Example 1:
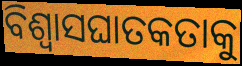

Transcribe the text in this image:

ବିଶ୍ୱାସଘାତକତାକୁ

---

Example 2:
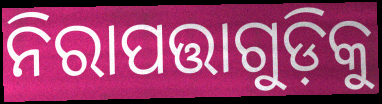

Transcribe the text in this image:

ନିରାପତ୍ତାଗୁଡ଼ିକୁ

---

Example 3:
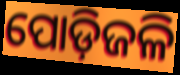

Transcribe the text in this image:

ପୋଡ଼ିଜଳି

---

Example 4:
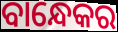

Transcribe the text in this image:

ବାନ୍ଧେକର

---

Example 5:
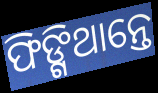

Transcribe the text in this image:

ଫିଙ୍ଗିଥାନ୍ତେ